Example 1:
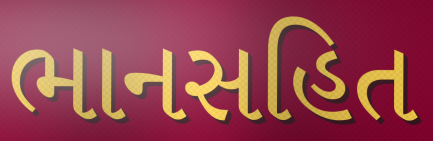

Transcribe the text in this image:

ભાનસહિત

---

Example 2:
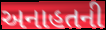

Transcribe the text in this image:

અનાહતની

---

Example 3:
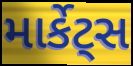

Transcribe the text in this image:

માર્કેટ્સ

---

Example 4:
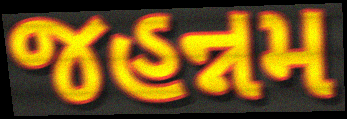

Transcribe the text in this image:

જહન્નમ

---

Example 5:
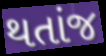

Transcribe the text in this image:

થતાંજ